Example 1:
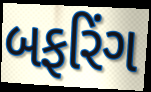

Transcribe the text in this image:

બફરિંગ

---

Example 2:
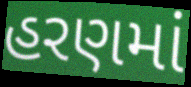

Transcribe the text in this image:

હરણમાં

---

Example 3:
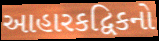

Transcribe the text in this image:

આહારકદ્વિકનો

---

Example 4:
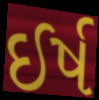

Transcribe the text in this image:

ઈર્ષ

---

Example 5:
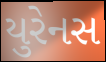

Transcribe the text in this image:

યુરેનસ